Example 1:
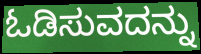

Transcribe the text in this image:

ಓಡಿಸುವದನ್ನು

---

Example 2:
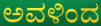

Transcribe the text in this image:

ಅವಳಿಂದ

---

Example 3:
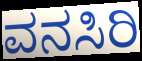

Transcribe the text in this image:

ವನಸಿರಿ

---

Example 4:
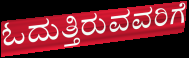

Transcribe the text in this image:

ಓದುತ್ತಿರುವವರಿಗೆ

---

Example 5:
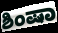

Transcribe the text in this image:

ಶಿಂಷಾ